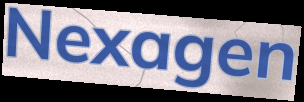
Nexagen